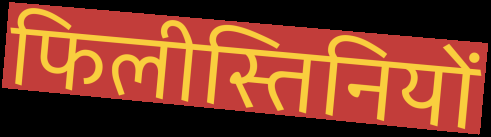
फिलीस्तिनियों